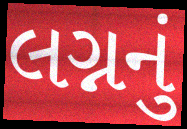
લગ્નનું